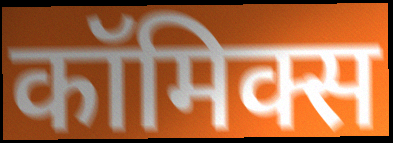
कॉमिक्स